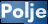
Polje